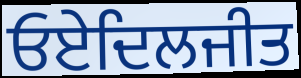
ਓਏਦਿਲਜੀਤ